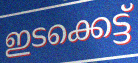
ഇടക്കെട്ട്